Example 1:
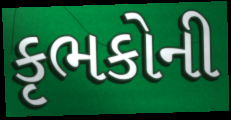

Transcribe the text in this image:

કૃભકોની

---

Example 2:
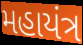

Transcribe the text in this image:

મહાયંત્ર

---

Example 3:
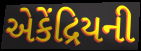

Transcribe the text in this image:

એકેંદ્રિયની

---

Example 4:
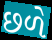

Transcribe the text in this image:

છળે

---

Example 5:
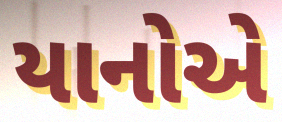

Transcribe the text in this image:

યાનોએ